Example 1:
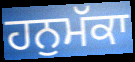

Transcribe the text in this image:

ਹਨੁਮੱਕਾ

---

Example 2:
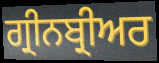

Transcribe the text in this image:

ਗ੍ਰੀਨਬ੍ਰੀਅਰ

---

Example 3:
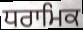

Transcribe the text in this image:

ਧਰਾਮਿਕ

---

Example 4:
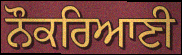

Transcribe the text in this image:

ਨੌਕਰਿਆਣੀ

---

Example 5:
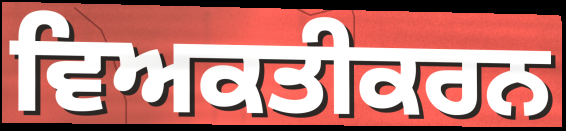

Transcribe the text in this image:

ਵਿਅਕਤੀਕਰਨ